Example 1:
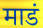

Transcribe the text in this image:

माडं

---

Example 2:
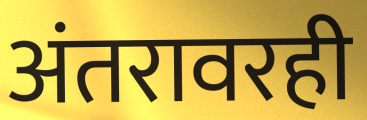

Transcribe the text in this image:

अंतरावरही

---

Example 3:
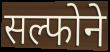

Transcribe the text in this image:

सल्फोने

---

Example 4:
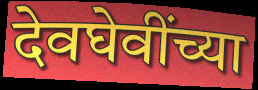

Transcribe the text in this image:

देवघेवींच्या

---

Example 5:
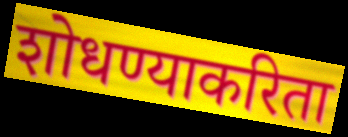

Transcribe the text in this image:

शोधण्याकरिता